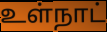
உள்நாட்